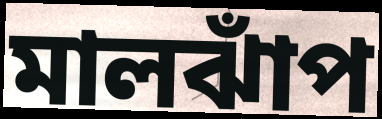
মালঝাঁপ